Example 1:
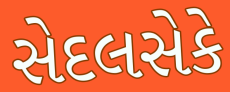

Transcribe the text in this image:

સેદલસેકે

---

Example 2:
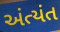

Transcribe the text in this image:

અંત્યંત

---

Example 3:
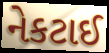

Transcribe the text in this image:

નેકટાઈ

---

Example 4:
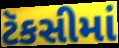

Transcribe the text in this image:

ટૅકસીમાં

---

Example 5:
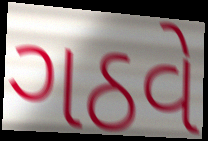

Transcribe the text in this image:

ગઠવે